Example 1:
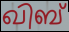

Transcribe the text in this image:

ഖിബ്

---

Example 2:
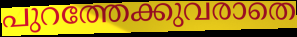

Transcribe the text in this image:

പുറത്തേക്കുവരാതെ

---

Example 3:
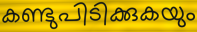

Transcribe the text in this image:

കണ്ടുപിടിക്കുകയും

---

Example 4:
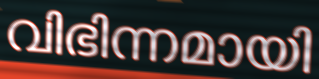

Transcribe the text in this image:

വിഭിന്നമായി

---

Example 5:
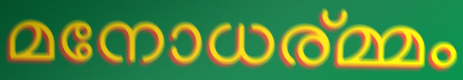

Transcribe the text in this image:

മനോധര്മ്മം